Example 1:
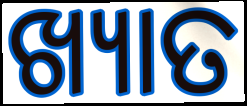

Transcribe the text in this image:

ଖ୍ୟାତ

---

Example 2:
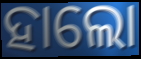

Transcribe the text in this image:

ହାଲୋ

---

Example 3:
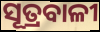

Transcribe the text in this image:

ସୂତ୍ରବାଳୀ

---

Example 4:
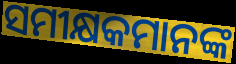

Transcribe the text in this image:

ସମୀକ୍ଷକମାନଙ୍କ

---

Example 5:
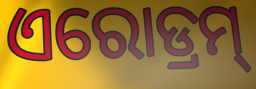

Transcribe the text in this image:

ଏରୋଡ୍ରମ୍